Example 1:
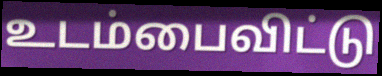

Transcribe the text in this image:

உடம்பைவிட்டு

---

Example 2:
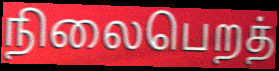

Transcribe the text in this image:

நிலைபெறத்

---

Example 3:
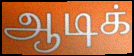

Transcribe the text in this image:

ஆடிக்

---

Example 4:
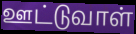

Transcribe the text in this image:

ஊட்டுவாள்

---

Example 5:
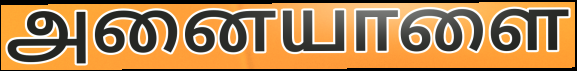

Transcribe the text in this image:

அனையாளை